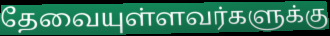
தேவையுள்ளவர்களுக்கு